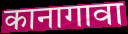
कानागावा